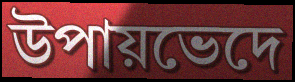
উপায়ভেদে